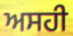
ਅਸਹੀ